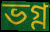
ভগ্ন